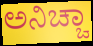
ಅನಿಚ್ಚಾ